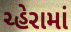
ચ્હેરામાં